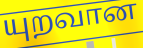
யுறவான